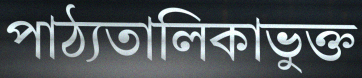
পাঠ্যতালিকাভুক্ত